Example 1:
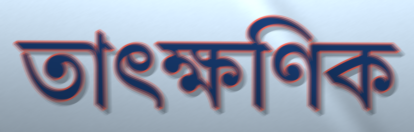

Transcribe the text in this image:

তাৎক্ষণিক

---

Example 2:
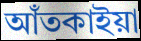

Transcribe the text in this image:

আঁতকাইয়া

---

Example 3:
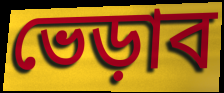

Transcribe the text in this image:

ভেড়াব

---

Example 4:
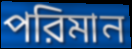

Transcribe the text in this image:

পরিমান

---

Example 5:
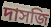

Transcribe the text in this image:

দাসজি